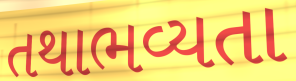
તથાભવ્યતા